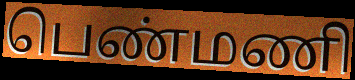
பெண்மணி